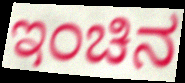
ಇಂಚಿನ